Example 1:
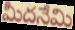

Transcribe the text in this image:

మీదనేమి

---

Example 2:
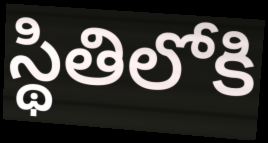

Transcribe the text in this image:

స్థితిలోకి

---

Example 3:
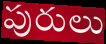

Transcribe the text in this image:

పురులు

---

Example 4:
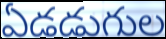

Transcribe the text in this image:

ఏడడుగుల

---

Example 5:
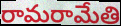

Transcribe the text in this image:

రామరామేతి